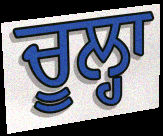
ਚੂਲ੍ਹਾ